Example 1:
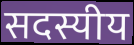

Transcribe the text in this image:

सदस्यीय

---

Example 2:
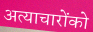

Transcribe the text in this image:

अत्याचारोंको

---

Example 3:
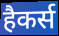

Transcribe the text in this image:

हैकर्स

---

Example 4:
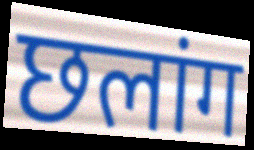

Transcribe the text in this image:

छलांग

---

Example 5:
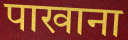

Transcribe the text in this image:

पाखाना